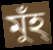
মুঁহ্